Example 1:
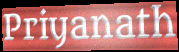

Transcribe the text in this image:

Priyanath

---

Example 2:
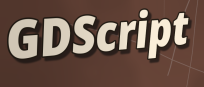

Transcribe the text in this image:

GDScript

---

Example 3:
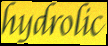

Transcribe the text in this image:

hydrolic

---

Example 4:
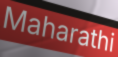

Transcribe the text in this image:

Maharathi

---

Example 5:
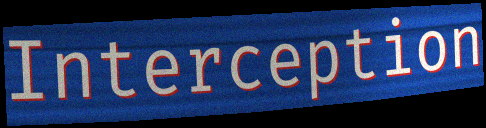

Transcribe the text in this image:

Interception